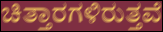
ಚಿತ್ತಾರಗಳಿರುತ್ತವೆ